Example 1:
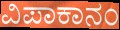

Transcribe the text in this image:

ವಿಪಾಕಾನಂ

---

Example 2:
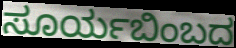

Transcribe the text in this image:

ಸೂರ್ಯಬಿಂಬದ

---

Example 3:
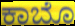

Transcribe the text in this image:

ಕಾಬೊ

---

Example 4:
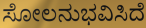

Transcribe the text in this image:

ಸೋಲನುಭವಿಸಿದೆ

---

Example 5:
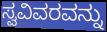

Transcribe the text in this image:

ಸ್ವವಿವರವನ್ನು